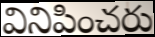
వినిపించరు